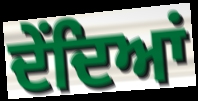
ਦੇਂਦਿਆਂ